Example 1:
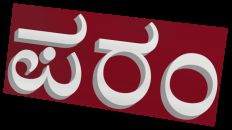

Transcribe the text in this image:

ಪರಂ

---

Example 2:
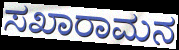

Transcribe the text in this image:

ಸಖಾರಾಮನ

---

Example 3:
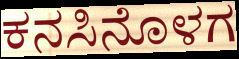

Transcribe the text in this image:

ಕನಸಿನೊಳಗ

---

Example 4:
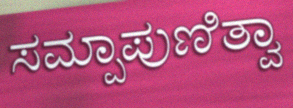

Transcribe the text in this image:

ಸಮ್ಪಾಪುಣಿತ್ವಾ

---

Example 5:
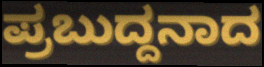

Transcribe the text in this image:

ಪ್ರಬುದ್ದನಾದ